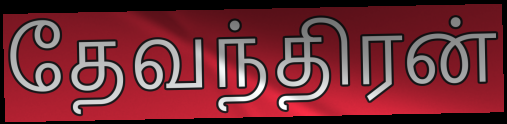
தேவந்திரன்